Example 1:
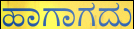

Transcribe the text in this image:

ಹಾಗಾಗದು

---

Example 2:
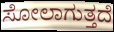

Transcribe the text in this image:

ಸೋಲಾಗುತ್ತದೆ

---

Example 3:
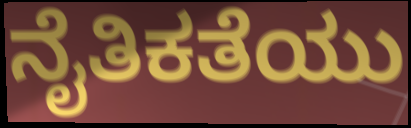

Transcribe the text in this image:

ನೈತಿಕತೆಯು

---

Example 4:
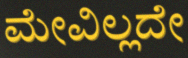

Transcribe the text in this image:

ಮೇವಿಲ್ಲದೇ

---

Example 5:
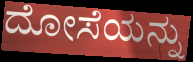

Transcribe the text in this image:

ದೋಸೆಯನ್ನು